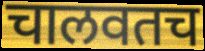
चालवतच